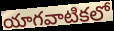
యాగవాటికలో